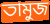
তামুজ